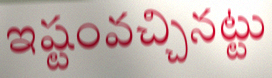
ఇష్టంవచ్చినట్టు